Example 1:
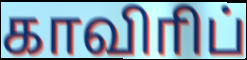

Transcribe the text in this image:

காவிரிப்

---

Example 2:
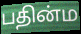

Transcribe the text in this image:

பதின்ம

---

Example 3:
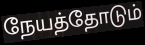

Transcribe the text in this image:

நேயத்தோடும்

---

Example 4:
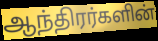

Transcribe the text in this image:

ஆந்திரர்களின்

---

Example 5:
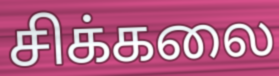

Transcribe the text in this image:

சிக்கலை